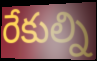
రేకుల్ని